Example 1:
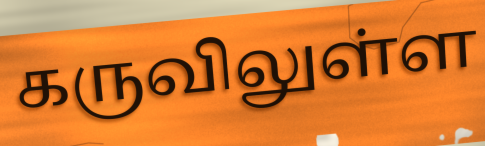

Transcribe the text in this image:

கருவிலுள்ள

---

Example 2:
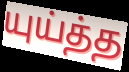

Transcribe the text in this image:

யுய்த்த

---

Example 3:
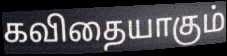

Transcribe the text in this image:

கவிதையாகும்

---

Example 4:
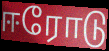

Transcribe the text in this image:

ஈரோடு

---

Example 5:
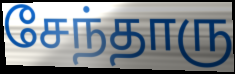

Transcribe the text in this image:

சேந்தாரு